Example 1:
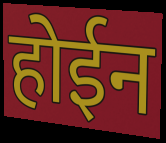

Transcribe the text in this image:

होईन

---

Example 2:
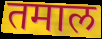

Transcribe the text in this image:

तमाल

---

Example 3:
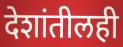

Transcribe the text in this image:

देशांतीलही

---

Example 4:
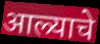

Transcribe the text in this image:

आल्याचे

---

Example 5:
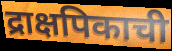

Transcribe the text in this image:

द्राक्षपिकाची